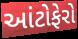
આંટોફેરો